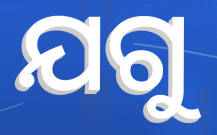
ଯଗୁ